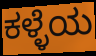
ಕಳ್ಳೆಯ